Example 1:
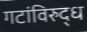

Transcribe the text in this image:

गटांविरुद्ध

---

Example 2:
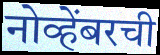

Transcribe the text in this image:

नोव्हेंबरची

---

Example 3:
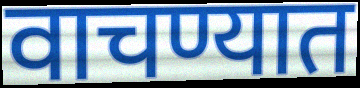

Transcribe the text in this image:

वाचण्यात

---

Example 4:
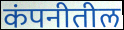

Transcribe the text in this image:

कंपनीतील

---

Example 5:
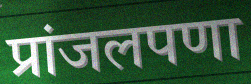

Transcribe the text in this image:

प्रांजलपणा